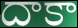
దాకా